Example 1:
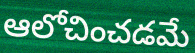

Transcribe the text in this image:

ఆలోచించడమే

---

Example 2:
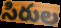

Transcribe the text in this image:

సిరుల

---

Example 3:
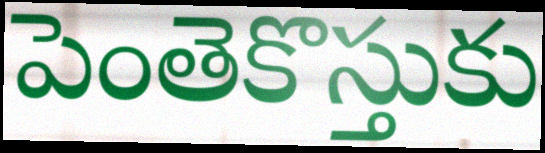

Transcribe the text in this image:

పెంతెకొస్తుకు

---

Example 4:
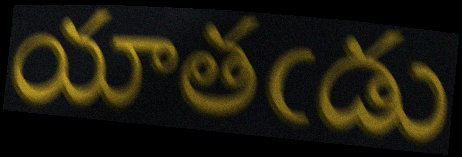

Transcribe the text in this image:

యాతఁడు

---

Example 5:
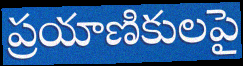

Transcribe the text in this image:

ప్రయాణికులపై